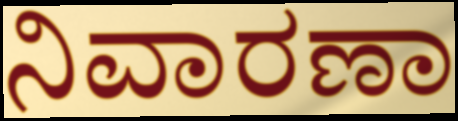
ನಿವಾರಣಾ